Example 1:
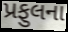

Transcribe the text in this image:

પ્રફુલના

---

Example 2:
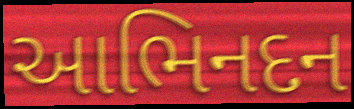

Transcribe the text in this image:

આભિનદન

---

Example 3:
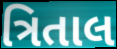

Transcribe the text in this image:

ત્રિતાલ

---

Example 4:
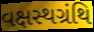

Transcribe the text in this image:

વક્ષસ્થગ્રંથિ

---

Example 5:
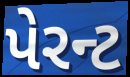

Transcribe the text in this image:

પેરન્ટ